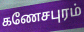
கணேசபுரம்